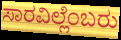
ಸಾರವಿಲ್ಲೆಂಬರು